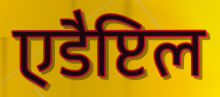
एडैप्टिल